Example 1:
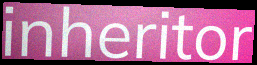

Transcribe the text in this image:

inheritor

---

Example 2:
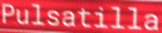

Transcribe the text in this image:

Pulsatilla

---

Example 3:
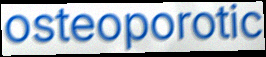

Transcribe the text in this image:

osteoporotic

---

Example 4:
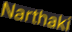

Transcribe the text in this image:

Narthaki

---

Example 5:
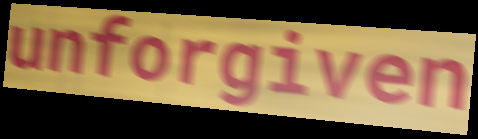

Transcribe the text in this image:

unforgiven